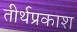
तीर्थप्रकाश